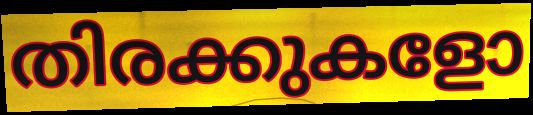
തിരക്കുകളോ